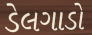
ડેલગાડો